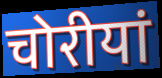
चोरीयां